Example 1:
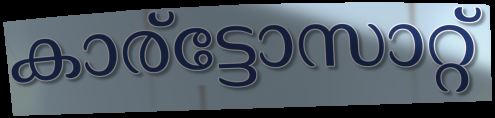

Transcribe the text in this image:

കാര്ട്ടോസാറ്റ്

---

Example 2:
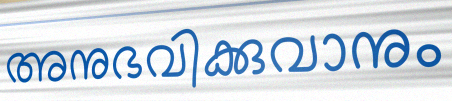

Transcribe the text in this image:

അനുഭവിക്കുവാനും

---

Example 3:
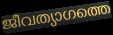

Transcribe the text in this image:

ജീവത്യാഗത്തെ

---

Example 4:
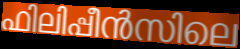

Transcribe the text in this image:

ഫിലിപ്പീൻസിലെ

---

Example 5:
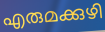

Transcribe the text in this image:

എരുമക്കുഴി